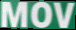
MOV